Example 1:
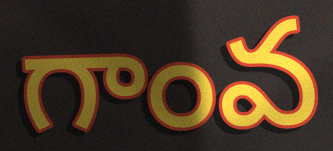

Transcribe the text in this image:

గాంవ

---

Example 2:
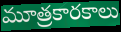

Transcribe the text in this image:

మూత్రకారకాలు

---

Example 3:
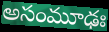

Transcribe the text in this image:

అసంమూఢః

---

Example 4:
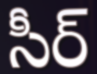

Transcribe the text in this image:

సీర్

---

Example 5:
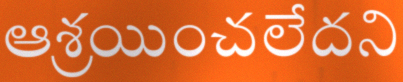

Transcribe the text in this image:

ఆశ్రయించలేదని